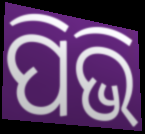
ପିଭି